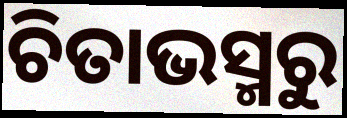
ଚିତାଭସ୍ମରୁ